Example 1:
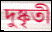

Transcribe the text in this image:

দুষ্কৃতী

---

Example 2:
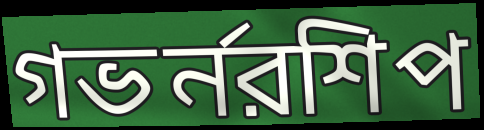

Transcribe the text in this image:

গভর্নরশিপ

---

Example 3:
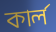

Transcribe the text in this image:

কার্ল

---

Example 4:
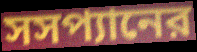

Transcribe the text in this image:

সসপ্যানের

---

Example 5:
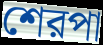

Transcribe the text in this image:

শেরপা